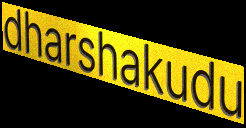
dharshakudu